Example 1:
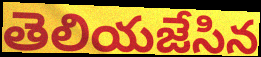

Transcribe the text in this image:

తెలియజేసిన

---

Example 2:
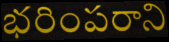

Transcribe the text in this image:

భరింపరాని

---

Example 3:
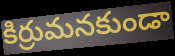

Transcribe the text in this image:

కిర్రుమనకుండా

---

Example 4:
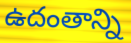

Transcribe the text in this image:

ఉదంతాన్ని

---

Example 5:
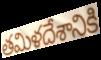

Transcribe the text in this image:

తమిళదేశానికి